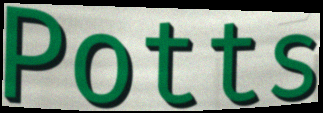
Potts